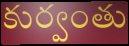
కుర్వంతు